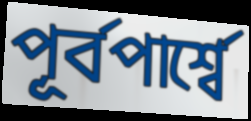
পূর্বপার্শ্বে